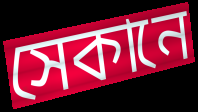
সেকানে